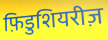
फ़िडुशियरीज़